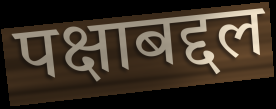
पक्षाबद्दल